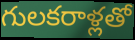
గులకరాళ్లతో